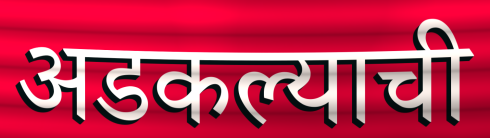
अडकल्याची